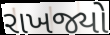
રાખજ્યો